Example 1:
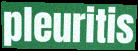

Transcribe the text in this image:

pleuritis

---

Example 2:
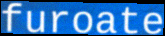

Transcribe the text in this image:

furoate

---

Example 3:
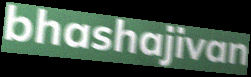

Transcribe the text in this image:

bhashajivan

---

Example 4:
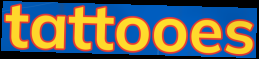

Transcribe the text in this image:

tattooes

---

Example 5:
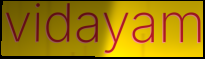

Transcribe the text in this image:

vidayam